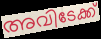
അവിടേക്ക്